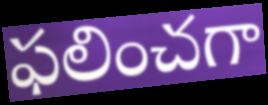
ఫలించగా